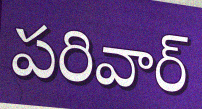
పరివార్